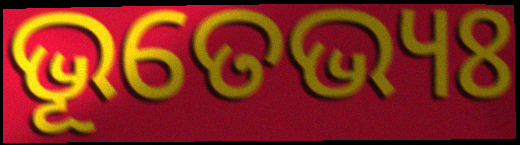
ଭୂତେଭ୍ୟଃ